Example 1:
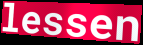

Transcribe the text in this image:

lessen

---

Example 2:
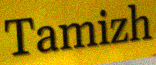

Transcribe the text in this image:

Tamizh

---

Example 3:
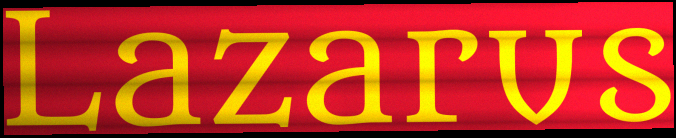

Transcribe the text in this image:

Lazarus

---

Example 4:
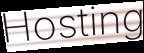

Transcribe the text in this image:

Hosting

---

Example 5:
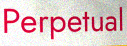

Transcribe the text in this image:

Perpetual